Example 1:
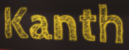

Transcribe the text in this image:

Kanth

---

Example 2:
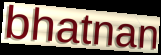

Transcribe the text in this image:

bhatnan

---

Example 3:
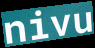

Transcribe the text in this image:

nivu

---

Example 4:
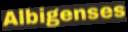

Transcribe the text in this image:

Albigenses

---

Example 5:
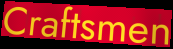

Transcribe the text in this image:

Craftsmen